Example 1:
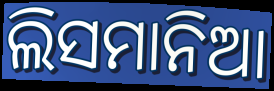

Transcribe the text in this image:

ଲିସମାନିଆ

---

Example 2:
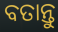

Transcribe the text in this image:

ବତାନ୍ତୁ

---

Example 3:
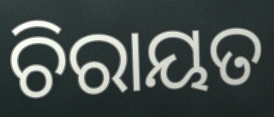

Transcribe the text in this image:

ଚିରାୟତ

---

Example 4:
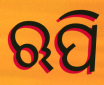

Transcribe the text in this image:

ଋପି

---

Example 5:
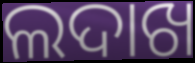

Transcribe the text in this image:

ଲଦାଖ